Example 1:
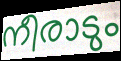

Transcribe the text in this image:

നീരാടും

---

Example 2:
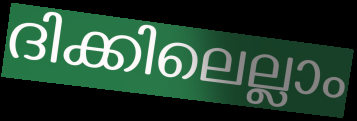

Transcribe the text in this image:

ദിക്കിലെല്ലാം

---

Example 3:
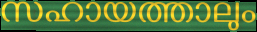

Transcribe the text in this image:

സഹായത്താലും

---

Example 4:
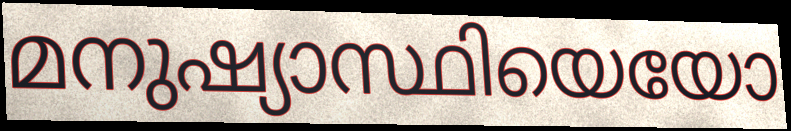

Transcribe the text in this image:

മനുഷ്യാസ്ഥിയെയോ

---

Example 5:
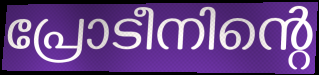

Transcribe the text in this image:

പ്രോടീനിന്റെ